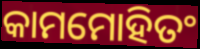
କାମମୋହିତଂ